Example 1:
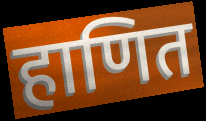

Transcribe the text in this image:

हाणित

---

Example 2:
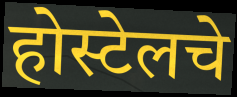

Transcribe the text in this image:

होस्टेलचे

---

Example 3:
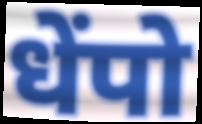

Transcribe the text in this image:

धेंपो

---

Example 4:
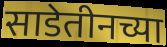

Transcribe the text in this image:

साडेतीनच्या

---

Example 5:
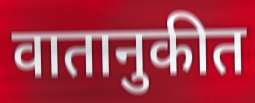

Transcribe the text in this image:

वातानुकीत